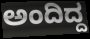
ಅಂದಿದ್ದ